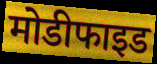
मोडीफाइड